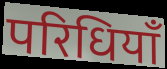
परिधियाँ